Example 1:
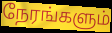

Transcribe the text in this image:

நேரங்களும்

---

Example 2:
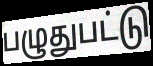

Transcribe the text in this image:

பழுதுபட்டு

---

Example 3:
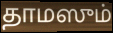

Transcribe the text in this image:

தாமஸும்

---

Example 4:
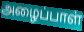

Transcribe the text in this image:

அழைப்பாள்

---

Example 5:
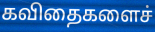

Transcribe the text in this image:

கவிதைகளைச்